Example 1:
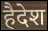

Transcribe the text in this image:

हैदेश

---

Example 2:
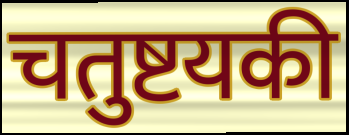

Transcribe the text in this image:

चतुष्टयकी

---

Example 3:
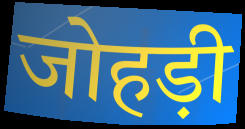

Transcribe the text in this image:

जोहड़ी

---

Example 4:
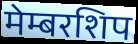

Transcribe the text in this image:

मेम्बरशिप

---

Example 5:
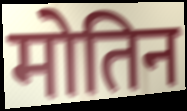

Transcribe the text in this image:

मोतिन